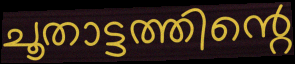
ചൂതാട്ടത്തിന്റെ